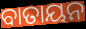
ବାତାୟନ